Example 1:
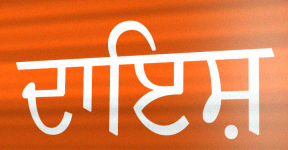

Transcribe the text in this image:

ਦਾਇਸ਼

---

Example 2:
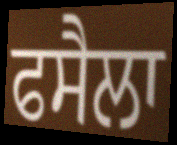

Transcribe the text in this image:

ਫਸੈਲਾ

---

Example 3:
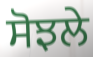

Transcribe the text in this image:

ਸੋਝਲੇ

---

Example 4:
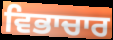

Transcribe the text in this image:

ਵਿਭਾਚਾਰ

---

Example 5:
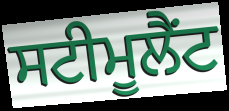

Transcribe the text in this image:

ਸਟੀਮੂਲੈਂਟ